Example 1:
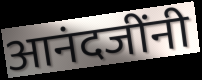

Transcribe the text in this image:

आनंदजींनी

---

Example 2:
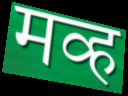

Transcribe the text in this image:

मव्ह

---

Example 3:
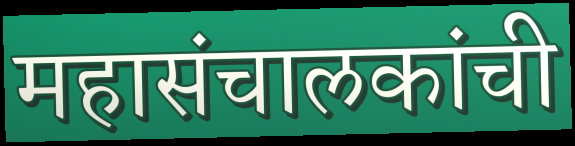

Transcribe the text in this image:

महासंचालकांची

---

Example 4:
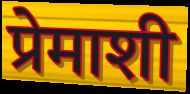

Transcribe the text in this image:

प्रेमाशी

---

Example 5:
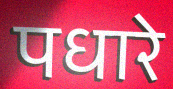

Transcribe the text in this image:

पधारे